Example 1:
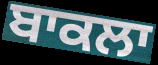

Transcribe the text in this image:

ਬਾਕਲਾ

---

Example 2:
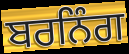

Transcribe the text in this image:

ਬਰਨਿੰਗ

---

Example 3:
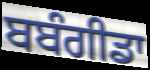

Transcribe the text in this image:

ਬਬੰਗੀਡਾ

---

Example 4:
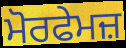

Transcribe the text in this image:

ਮੋਰਫੇਮਜ਼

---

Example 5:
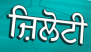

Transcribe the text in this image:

ਜ਼ਿਲੋਟੀ